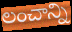
లంచాన్ని